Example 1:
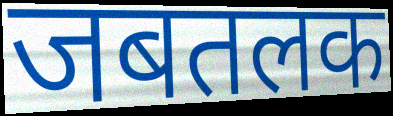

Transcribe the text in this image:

जबतलक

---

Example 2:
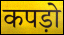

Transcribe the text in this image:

कपड़ो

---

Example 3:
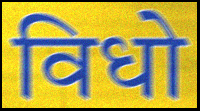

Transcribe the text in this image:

विधो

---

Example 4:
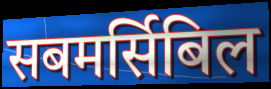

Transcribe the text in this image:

सबमर्सिबिल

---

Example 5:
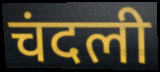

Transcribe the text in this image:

चंदली